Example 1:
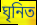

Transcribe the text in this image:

ঘৃনিত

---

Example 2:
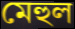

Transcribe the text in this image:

মেহুল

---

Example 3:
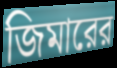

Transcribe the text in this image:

জিমারের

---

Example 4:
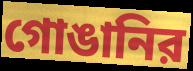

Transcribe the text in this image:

গোঙানির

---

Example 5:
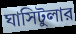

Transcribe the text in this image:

ঘাসিটুলার